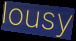
lousy